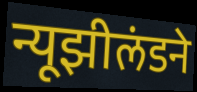
न्यूझीलंडने